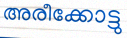
അരീക്കോട്ടു